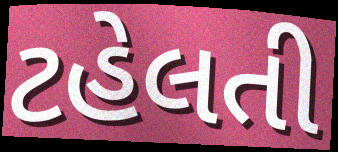
ટહેલતી